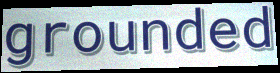
grounded